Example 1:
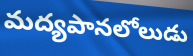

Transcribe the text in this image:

మద్యపానలోలుడు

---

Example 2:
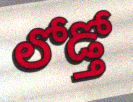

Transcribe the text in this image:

లోడ్తో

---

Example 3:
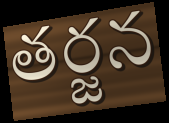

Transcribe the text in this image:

తర్జన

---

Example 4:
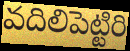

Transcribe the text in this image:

వదిలిపెట్టిరి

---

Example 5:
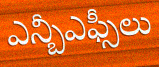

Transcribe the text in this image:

ఎన్బీఎఫ్సీలు